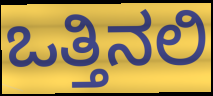
ಒತ್ತಿನಲಿ